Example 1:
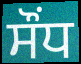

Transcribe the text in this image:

ਸੌਂਧ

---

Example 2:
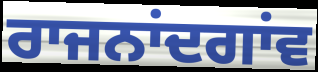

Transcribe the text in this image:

ਰਾਜਨਾਂਦਗਾਂਵ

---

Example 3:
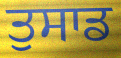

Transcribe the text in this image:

ਤੁਸਾਡ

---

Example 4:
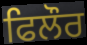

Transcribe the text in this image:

ਫਿਲੌਰ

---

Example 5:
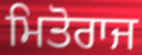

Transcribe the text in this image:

ਮਿਤੋਰਾਜ